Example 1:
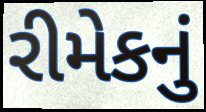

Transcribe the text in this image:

રીમેકનું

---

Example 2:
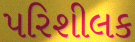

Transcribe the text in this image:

પરિશીલક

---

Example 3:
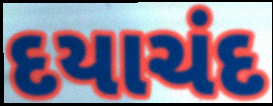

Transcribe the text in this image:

દયાચંદ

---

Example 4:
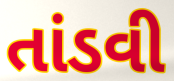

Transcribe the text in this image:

તાંડવી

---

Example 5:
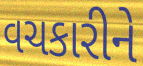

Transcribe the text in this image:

વચકારીને